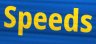
Speeds